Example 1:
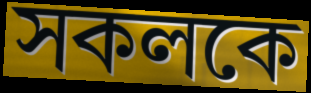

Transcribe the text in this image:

সকলকে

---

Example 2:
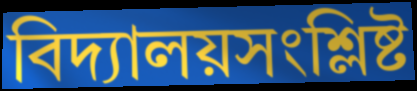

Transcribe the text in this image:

বিদ্যালয়সংশ্লিষ্ট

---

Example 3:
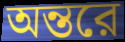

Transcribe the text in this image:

অন্তরে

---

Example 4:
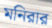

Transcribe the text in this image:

মনিরার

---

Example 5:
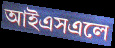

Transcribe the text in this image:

আইএসএলে